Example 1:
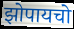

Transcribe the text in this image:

झोपायचो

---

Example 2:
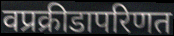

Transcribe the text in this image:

वप्रक्रीडापरिणत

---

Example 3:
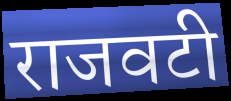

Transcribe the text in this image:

राजवटी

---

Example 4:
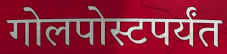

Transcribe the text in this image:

गोलपोस्टपर्यंत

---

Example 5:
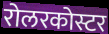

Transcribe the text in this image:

रोलरकोस्टर